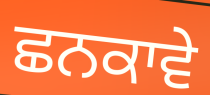
ਛਨਕਾਵੇ